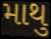
માથુ